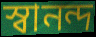
স্বানন্দ